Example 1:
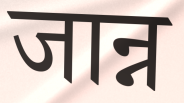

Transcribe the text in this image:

जान्न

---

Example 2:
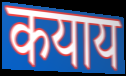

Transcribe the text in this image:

कयाय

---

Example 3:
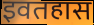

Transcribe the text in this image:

इवतहास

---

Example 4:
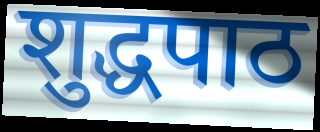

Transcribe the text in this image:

शुद्धपाठ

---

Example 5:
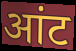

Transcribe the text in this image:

आंट